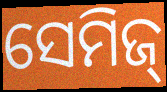
ସେମିଜ୍